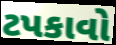
ટપકાવો